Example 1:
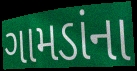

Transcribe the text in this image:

ગામડાંના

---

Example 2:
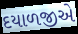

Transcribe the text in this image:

દયાળજીએ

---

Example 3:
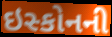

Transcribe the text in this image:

ઇસ્કોનની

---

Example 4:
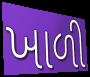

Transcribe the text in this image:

ખાળી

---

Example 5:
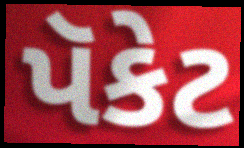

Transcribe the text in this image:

પૅકેટ